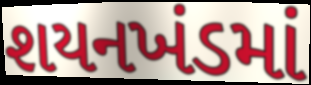
શયનખંડમાં